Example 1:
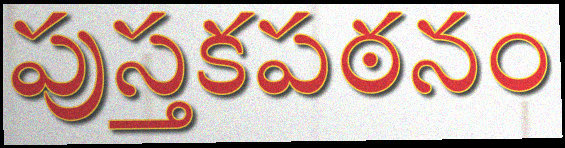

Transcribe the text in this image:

పుస్తకపఠనం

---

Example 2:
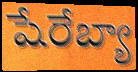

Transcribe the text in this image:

షేరేబ్యా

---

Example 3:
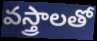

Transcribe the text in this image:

వస్త్రాలతో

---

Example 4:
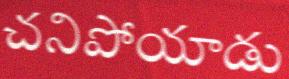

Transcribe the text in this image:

చనిపోయాడు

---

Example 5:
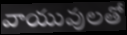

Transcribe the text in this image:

వాయువులతో